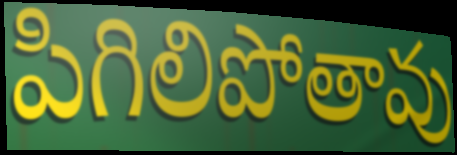
పిగిలిపోతావు